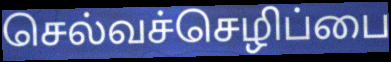
செல்வச்செழிப்பை